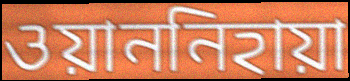
ওয়াননিহায়া